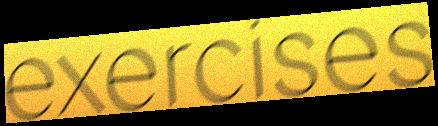
exercises